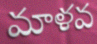
మాళవ